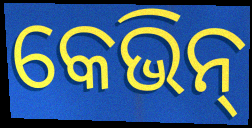
କେଭିନ୍